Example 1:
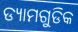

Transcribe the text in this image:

ଡ୍ୟାମଗୁଡିକ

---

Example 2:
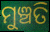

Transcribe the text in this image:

ମୁଞ୍ଚତି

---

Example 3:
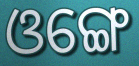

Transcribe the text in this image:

ଓଙ୍ଗେ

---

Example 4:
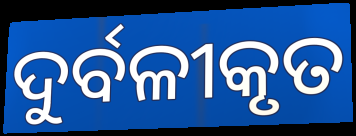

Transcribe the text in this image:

ଦୁର୍ବଳୀକୃତ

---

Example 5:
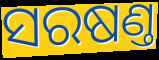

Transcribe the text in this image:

ସରଷଣ୍ତ